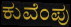
ಕುವೆಂಪು